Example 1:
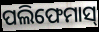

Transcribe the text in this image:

ପଲିଫେମାସ୍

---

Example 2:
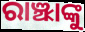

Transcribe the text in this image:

ରାଞ୍ଝାଙ୍କୁ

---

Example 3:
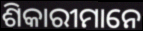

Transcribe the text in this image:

ଶିକାରୀମାନେ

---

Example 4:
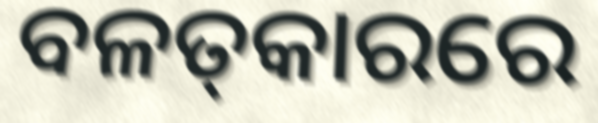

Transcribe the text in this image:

ବଳତ୍‌କାରରେ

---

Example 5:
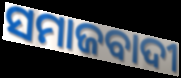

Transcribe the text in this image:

ସମାଜବାଦୀ